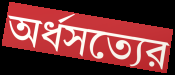
অর্ধসত্যের